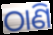
ଠାଣି